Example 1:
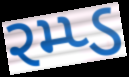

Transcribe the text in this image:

રમ્પ્ડ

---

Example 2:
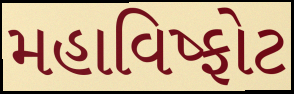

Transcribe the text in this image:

મહાવિષ્ફોટ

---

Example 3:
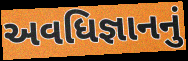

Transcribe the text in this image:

અવધિજ્ઞાનનું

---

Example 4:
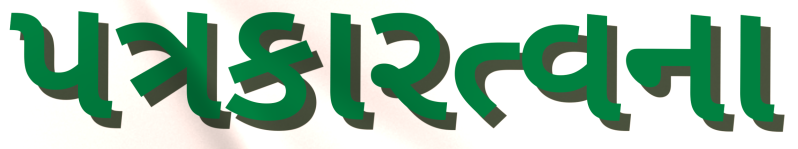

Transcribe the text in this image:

પત્રકારત્વના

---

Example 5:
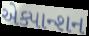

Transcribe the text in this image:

એક્પાન્શન